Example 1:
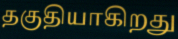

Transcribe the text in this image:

தகுதியாகிறது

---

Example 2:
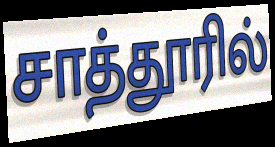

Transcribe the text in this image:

சாத்தூரில்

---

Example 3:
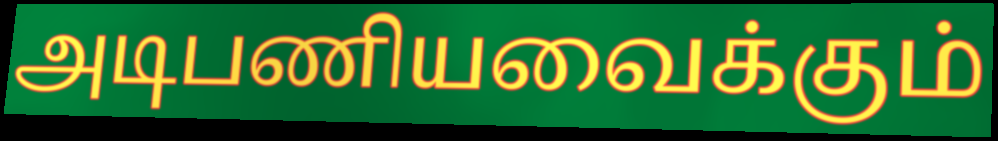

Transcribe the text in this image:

அடிபணியவைக்கும்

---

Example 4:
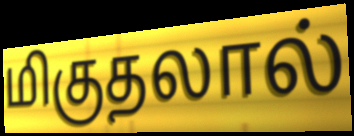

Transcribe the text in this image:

மிகுதலால்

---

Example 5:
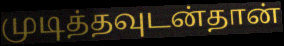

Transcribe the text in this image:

முடித்தவுடன்தான்